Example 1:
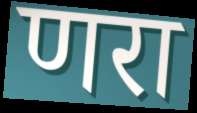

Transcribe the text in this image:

णरा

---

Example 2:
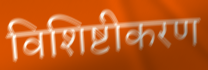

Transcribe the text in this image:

विशिष्टीकरण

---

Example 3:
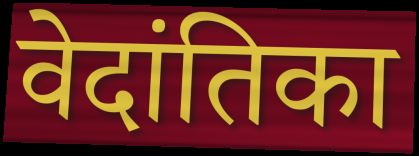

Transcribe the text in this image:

वेदांतिका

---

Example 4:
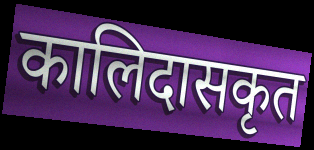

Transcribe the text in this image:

कालिदासकृत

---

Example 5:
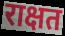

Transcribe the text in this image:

राक्षत